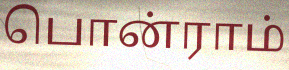
பொன்ராம்